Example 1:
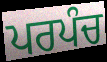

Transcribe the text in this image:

ਪਰਪੰਚ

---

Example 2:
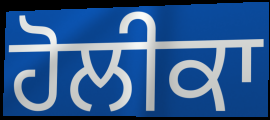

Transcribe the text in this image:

ਹੋਲੀਕਾ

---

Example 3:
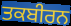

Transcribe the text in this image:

ਤਕਬੀਰਨ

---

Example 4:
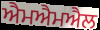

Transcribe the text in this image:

ਐਮਐਮਐਲ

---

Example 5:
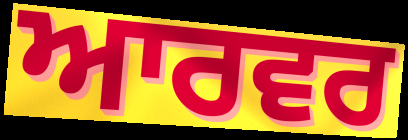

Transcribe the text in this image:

ਆਰਵਰ